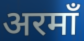
अरमाँ